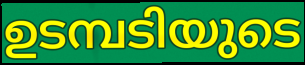
ഉടമ്പടിയുടെ